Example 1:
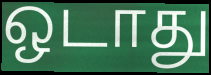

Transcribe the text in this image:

ஒடாது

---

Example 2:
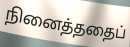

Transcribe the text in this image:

நினைத்ததைப்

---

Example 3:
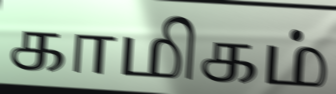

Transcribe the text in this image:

காமிகம்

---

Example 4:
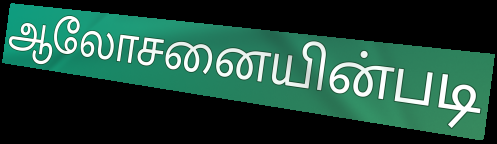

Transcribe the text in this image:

ஆலோசனையின்படி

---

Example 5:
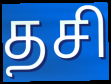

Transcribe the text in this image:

தசி